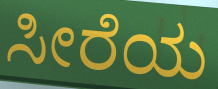
ಸೀರೆಯ